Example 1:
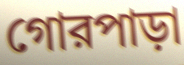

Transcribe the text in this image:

গোরপাড়া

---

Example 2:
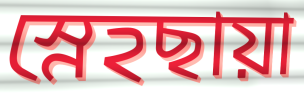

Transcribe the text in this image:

স্নেহছায়া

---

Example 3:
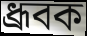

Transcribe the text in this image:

ধ্রূবক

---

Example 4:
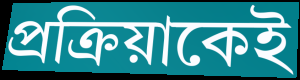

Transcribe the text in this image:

প্রক্রিয়াকেই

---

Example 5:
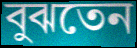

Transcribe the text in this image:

বুঝতেন